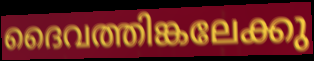
ദൈവത്തിങ്കലേക്കു